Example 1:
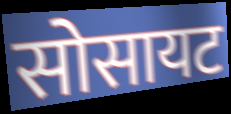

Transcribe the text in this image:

सोसायट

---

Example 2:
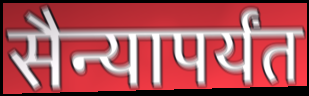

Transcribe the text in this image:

सैन्यापर्यंत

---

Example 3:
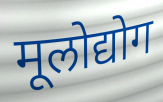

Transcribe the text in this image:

मूलोद्योग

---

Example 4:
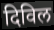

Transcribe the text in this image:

दिविल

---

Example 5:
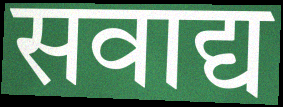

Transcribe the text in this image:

सवाद्य